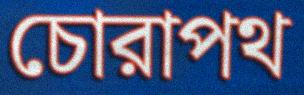
চোরাপথ